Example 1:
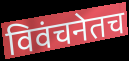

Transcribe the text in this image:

विवंचनेतच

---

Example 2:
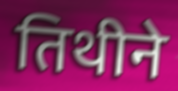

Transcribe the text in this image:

तिथीने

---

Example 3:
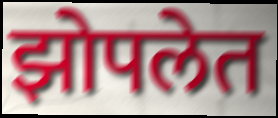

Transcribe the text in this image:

झोपलेत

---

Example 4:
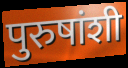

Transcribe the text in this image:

पुरुषांशी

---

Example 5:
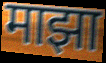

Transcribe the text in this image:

माझा